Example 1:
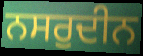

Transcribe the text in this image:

ਨਸਰੁਦੀਨ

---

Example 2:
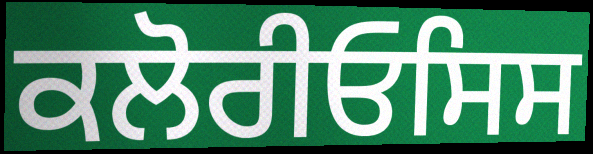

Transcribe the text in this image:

ਕਲੋਰੀਓਸਿਸ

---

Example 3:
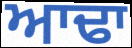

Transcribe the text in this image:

ਆਢਾ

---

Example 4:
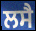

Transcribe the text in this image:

ਲਸੈ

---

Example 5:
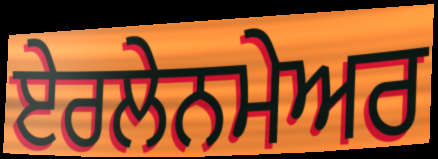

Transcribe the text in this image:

ਏਰਲੇਨਮੇਅਰ